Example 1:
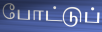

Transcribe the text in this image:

போட்டுப்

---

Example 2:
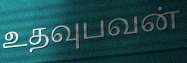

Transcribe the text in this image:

உதவுபவன்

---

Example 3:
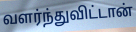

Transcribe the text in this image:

வளர்ந்துவிட்டான்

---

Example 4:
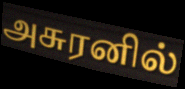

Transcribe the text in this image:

அசுரனில்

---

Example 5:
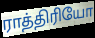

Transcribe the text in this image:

ராத்திரியோ